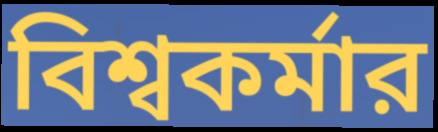
বিশ্বকর্মার